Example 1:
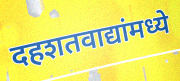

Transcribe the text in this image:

दहशतवाद्यांमध्ये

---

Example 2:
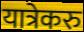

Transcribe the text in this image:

यात्रेकरु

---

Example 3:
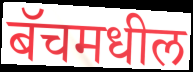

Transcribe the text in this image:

बॅचमधील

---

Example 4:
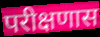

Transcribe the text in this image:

परीक्षणास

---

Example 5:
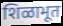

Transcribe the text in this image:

शिळाभूत